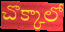
చొక్కాలో